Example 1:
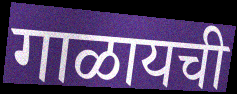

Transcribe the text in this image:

गाळायची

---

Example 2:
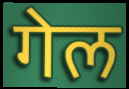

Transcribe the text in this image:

गेल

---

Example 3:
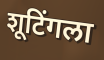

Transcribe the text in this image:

शूटिंगला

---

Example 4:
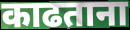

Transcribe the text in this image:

काढताना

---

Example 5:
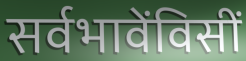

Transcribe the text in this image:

सर्वभावेंविसीं